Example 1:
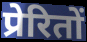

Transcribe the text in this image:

प्रेरितों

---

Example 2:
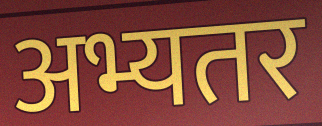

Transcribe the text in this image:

अभ्यतर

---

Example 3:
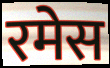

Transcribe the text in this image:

रमेस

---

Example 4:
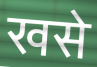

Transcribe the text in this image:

खसे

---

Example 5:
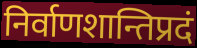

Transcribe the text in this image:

निर्वाणशान्तिप्रदं